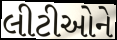
લીટીઓને